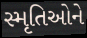
સ્મૃતિઓને